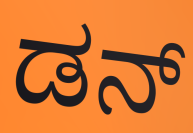
ಡನ್